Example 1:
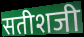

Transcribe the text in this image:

सतीशजी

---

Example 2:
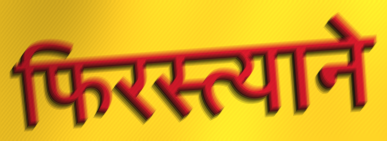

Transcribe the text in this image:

फिरस्त्याने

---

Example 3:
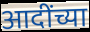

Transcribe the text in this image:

आदींच्या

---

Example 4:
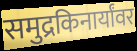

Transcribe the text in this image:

समुद्रकिनार्यांवर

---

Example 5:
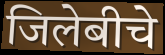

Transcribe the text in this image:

जिलेबीचे